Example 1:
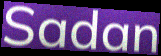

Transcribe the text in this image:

Sadan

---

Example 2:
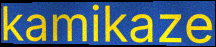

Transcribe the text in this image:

kamikaze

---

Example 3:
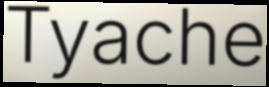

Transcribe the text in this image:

Tyache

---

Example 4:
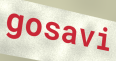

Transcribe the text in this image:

gosavi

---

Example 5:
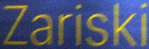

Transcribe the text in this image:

Zariski